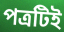
পত্রটিই